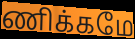
ணிக்கமே